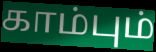
காம்பும்